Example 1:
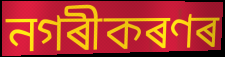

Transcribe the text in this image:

নগৰীকৰণৰ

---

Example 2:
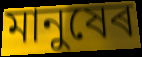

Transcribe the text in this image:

মানুষেৰ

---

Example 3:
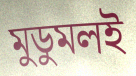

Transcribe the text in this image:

মুডুমলই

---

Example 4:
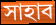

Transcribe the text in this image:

সাহাব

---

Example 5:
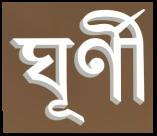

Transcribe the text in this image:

ঘূৰ্ণী